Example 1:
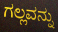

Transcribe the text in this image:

ಗಲ್ಲವನ್ನು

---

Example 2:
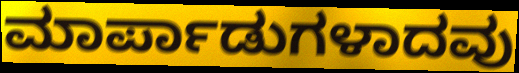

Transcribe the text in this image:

ಮಾರ್ಪಾಡುಗಳಾದವು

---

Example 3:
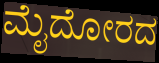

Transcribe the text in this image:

ಮೈದೋರದ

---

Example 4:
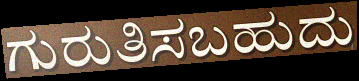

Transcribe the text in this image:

ಗುರುತಿಸಬಹುದು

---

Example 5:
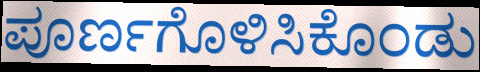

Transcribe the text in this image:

ಪೂರ್ಣಗೊಳಿಸಿಕೊಂಡು